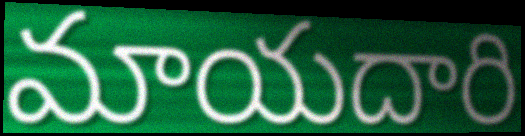
మాయదారి